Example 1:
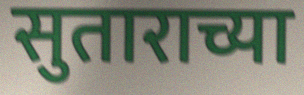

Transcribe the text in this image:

सुताराच्या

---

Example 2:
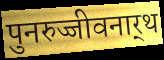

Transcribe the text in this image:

पुनरुज्जीवनार्थ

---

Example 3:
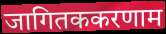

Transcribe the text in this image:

जागितककरणाम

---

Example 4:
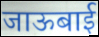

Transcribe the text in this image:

जाऊबाई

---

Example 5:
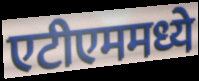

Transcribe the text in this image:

एटीएममध्ये